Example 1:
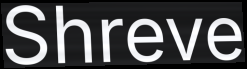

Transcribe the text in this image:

Shreve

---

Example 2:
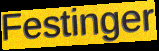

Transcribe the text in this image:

Festinger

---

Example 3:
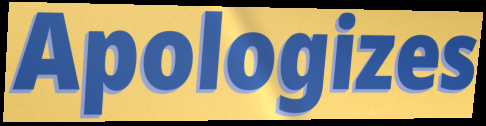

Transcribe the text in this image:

Apologizes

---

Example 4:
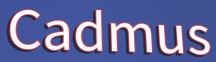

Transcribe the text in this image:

Cadmus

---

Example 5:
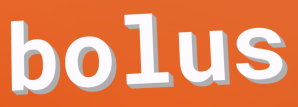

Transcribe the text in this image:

bolus